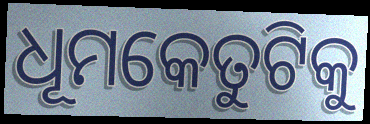
ଧୂମକେତୁଟିକୁ